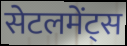
सेटलमेंट्स